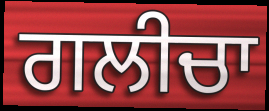
ਗਲੀਚਾ